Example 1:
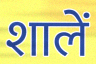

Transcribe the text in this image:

शालें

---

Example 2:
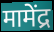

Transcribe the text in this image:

मामेंद्र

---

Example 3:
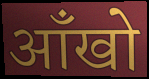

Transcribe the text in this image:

ऑंखो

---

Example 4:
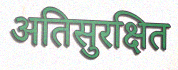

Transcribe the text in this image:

अतिसुरक्षित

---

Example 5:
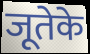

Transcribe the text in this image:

जूतेके